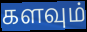
களவும்